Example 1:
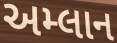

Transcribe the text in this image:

અમ્લાન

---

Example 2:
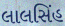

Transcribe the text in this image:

લાલસિંહ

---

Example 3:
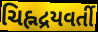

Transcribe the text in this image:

ચિહ્નદ્રયવર્તી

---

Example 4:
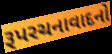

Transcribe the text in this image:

રૂપરચનાવાદનો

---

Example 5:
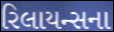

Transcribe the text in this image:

રિલાયન્સના